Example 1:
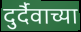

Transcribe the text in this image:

दुर्दैवाच्या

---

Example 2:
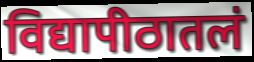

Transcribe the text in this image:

विद्यापीठातलं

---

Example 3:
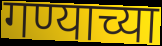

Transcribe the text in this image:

गण्याच्या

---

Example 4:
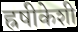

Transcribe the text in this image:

ह्रषीकेशी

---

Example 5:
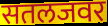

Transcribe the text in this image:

सतलजवर